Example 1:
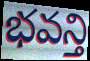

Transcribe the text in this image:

భవన్తి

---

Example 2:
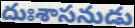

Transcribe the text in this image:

దుఃశాసనుడు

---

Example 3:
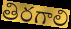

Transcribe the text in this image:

తిరగాలి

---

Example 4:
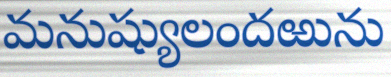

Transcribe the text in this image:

మనుష్యులందఱును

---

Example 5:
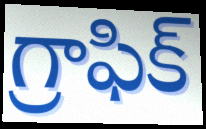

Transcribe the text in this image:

గ్రాఫిక్